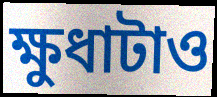
ক্ষুধাটাও